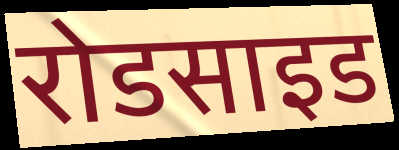
रोडसाइड